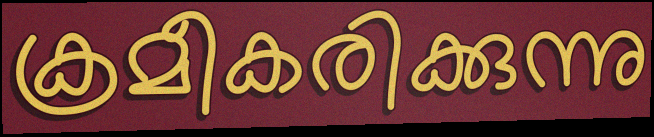
ക്രമീകരിക്കുന്നു